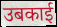
उबकाई